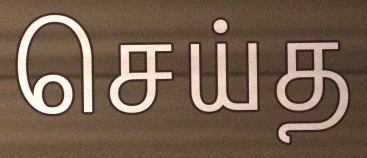
செய்த